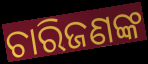
ଚାରିଜଣଙ୍କ